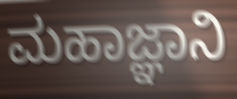
ಮಹಾಜ್ಞಾನಿ